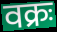
वक्रः